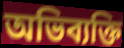
অভিব্যক্তি